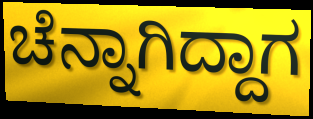
ಚೆನ್ನಾಗಿದ್ದಾಗ